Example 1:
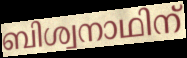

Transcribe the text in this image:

ബിശ്വനാഥിന്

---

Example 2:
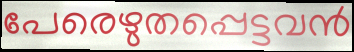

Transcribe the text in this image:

പേരെഴുതപ്പെട്ടവൻ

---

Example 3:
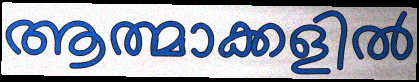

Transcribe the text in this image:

ആത്മാക്കളിൽ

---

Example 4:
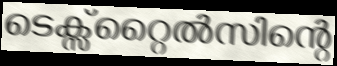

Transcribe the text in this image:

ടെക്സ്റ്റൈൽസിന്റെ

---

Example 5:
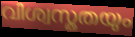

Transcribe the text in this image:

വിശ്വസ്തതയും